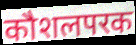
कौशलपरक